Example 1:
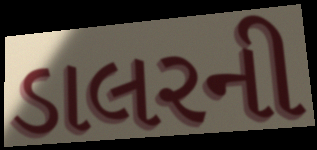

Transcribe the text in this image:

ડાલરની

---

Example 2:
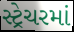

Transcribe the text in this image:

સ્ટ્રેચરમાં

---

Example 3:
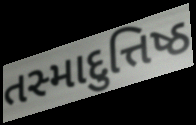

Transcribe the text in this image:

તસ્માદુત્તિષ્ઠ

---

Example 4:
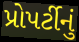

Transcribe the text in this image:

પ્રોપર્ટીનું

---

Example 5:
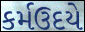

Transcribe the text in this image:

કર્મઉદયે